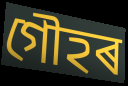
গৌহৰ